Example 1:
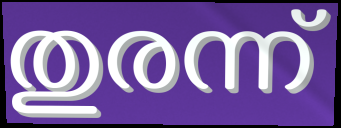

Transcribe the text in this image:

തുരന്ന്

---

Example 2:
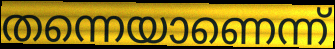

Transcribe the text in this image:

തന്നെയാണെന്ന്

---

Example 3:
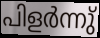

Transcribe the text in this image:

പിളർന്നു്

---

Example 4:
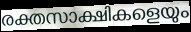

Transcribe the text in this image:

രക്തസാക്ഷികളെയും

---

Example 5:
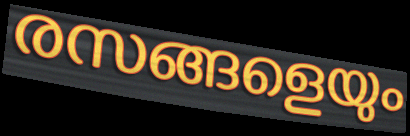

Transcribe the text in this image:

രസങ്ങളെയും